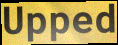
Upped